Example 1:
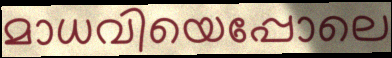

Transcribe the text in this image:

മാധവിയെപ്പോലെ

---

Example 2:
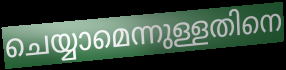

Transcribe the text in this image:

ചെയ്യാമെന്നുള്ളതിനെ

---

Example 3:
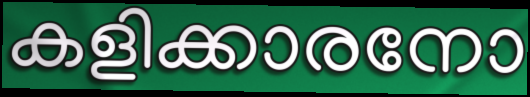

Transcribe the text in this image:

കളിക്കാരനോ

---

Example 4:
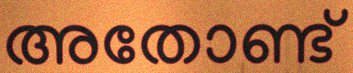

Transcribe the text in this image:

അതോണ്ട്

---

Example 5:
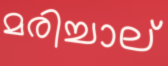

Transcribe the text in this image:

മരിച്ചാല്